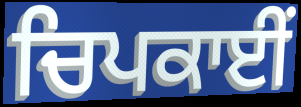
ਚਿਪਕਾਈਂ